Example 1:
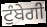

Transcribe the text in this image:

ਟੁੰਬੇਗੀ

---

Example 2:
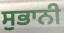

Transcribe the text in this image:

ਸੁਭਾਨੀ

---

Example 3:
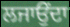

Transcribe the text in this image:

ਲਜਾਉਂਦਾ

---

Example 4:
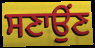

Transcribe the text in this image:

ਸਣਾਉਂਣ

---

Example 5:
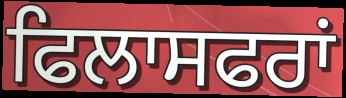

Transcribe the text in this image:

ਫਿਲਾਸਫਰਾਂ